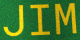
JIM